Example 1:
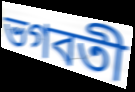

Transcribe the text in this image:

ভগবতী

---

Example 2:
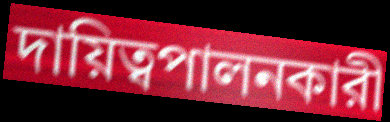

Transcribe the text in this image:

দায়িত্বপালনকারী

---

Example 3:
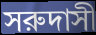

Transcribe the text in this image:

সরুদাসী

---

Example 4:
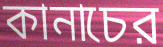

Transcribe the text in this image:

কানাচের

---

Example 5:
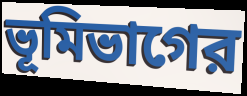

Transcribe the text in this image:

ভূমিভাগের